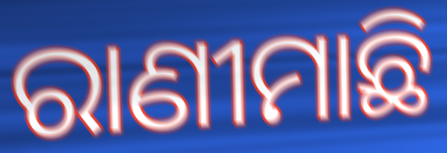
ରାଣୀମାଛି